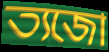
ত্যজো